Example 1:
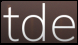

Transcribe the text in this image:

tde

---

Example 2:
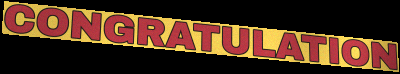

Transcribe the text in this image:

CONGRATULATION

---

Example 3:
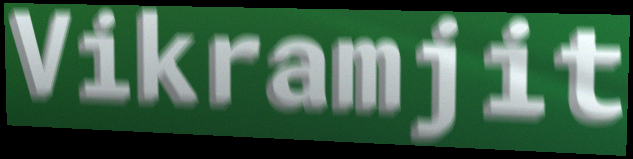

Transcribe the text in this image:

Vikramjit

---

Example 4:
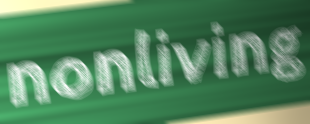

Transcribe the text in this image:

nonliving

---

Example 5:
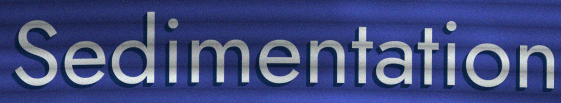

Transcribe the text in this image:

Sedimentation